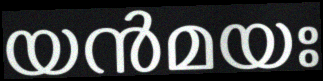
യൻമയഃ